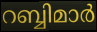
റബ്ബിമാർ